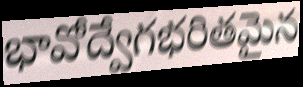
భావోద్వేగభరితమైన